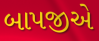
બાપજીએ